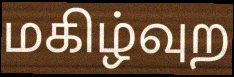
மகிழ்வுற